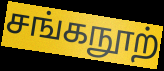
சங்கநூற்